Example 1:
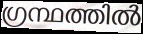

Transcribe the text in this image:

ഗ്രന്ഥത്തിൽ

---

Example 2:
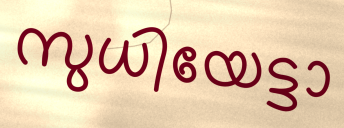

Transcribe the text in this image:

സുധിയേട്ടാ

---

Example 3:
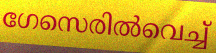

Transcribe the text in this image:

ഗേസെരിൽവെച്ച്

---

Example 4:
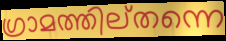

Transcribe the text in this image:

ഗ്രാമത്തില്തന്നെ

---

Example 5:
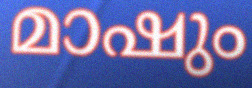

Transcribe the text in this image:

മാഷും